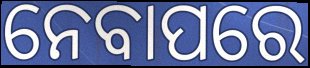
ନେବାପରେ